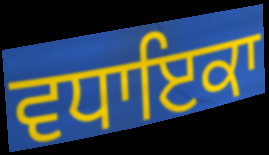
ਵਧਾਇਕਾ